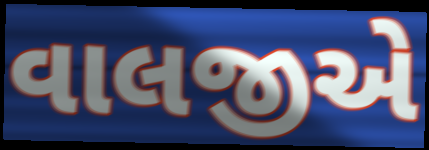
વાલજીએ